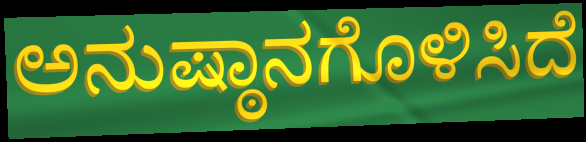
ಅನುಷ್ಠಾನಗೊಳಿಸಿದೆ